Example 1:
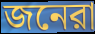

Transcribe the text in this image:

জনেরা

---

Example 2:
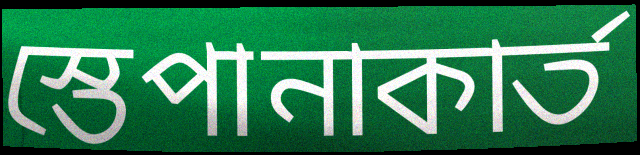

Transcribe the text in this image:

স্তেপানাকার্ত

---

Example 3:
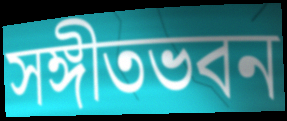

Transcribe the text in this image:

সঙ্গীতভবন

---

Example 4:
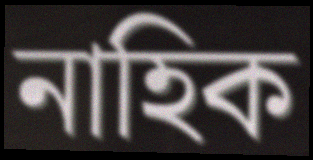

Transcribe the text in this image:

নাহিক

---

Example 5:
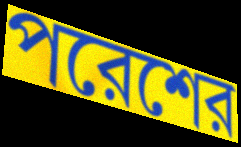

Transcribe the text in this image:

পরেশের